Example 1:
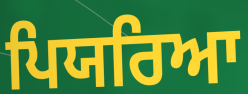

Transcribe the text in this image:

ਪਿਯਰਿਆ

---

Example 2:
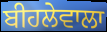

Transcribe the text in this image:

ਬੀਹਲੇਵਾਲਾ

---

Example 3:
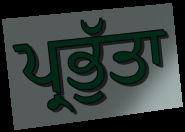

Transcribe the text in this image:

ਪ੍ਰਭੁੱਤਾ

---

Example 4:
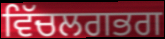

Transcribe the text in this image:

ਵਿੱਚਲਗਭਗ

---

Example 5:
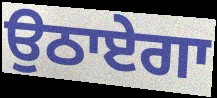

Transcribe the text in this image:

ਉਠਾਏਗਾ